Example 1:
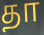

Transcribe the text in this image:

தா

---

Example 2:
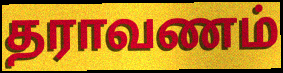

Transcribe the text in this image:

தராவணம்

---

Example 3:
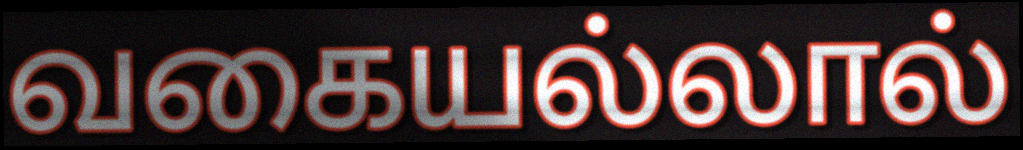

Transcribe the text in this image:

வகையல்லால்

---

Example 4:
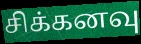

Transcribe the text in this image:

சிக்கனவு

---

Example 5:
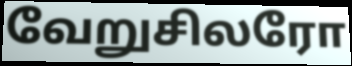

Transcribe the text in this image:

வேறுசிலரோ